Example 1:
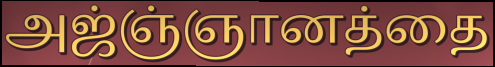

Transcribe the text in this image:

அஜ்ஞ்ஞானத்தை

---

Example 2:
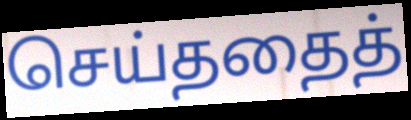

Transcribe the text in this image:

செய்ததைத்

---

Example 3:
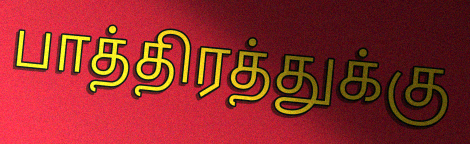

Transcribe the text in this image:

பாத்திரத்துக்கு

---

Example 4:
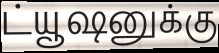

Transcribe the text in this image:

ட்யூஷனுக்கு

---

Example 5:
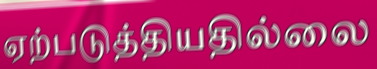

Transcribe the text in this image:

ஏற்படுத்தியதில்லை